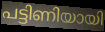
പട്ടിണിയായി